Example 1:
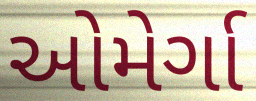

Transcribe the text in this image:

ઓમેર્ગા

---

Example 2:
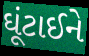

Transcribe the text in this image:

ઘૂંટાઈને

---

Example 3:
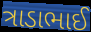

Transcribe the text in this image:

ત્રાડાભાઈ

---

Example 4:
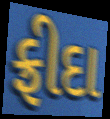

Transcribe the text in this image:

ફ્રીદા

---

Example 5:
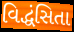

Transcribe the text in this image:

વિદ્ધંસિતા